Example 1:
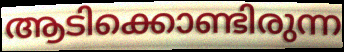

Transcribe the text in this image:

ആടിക്കൊണ്ടിരുന്ന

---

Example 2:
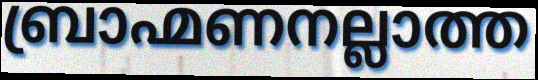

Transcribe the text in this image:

ബ്രാഹ്മണനല്ലാത്ത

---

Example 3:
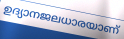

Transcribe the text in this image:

ഉദ്യാനജലധാരയാണ്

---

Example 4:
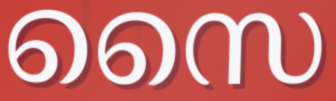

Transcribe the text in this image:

സൈ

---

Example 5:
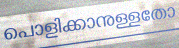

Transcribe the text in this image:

പൊളിക്കാനുള്ളതോ